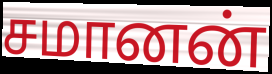
சமானன்